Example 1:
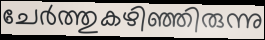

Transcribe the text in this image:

ചേർത്തുകഴിഞ്ഞിരുന്നു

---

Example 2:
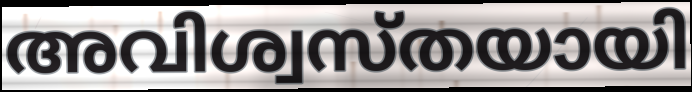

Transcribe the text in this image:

അവിശ്വസ്തയായി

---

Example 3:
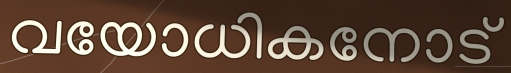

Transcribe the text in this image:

വയോധികനോട്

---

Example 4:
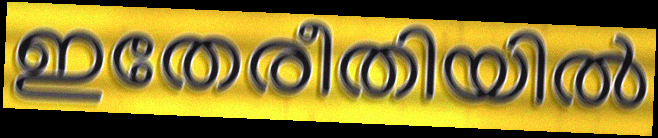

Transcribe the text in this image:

ഇതേരീതിയിൽ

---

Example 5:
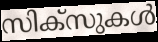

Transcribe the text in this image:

സിക്സുകൾ